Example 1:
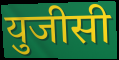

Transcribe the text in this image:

युजीसी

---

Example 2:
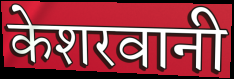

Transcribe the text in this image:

केशरवानी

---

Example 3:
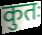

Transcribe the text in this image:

कुतः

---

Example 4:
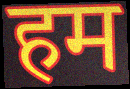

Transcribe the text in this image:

हम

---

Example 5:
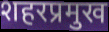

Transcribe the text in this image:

शहरप्रमुख